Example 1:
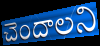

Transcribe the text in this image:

చెందాలని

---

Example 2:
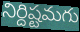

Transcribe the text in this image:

నిర్దిష్టమగు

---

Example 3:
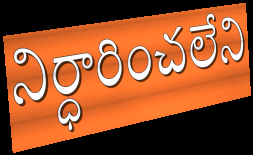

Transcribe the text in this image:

నిర్ధారించలేని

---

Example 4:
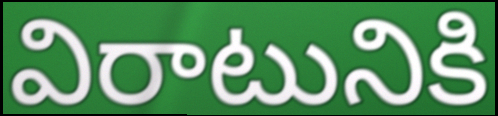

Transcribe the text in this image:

విరాటునికి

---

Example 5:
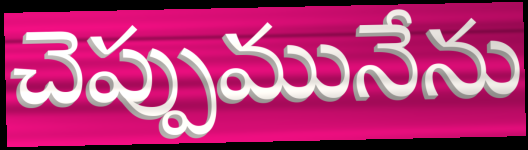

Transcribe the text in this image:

చెప్పుమునేను